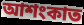
আশংকাত